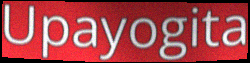
Upayogita